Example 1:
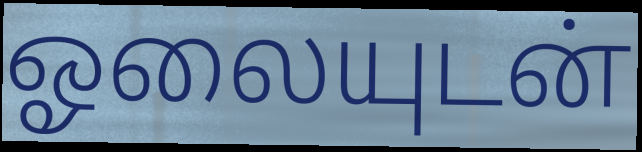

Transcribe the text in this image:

ஓலையுடன்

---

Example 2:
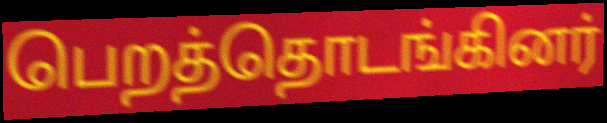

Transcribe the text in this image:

பெறத்தொடங்கினர்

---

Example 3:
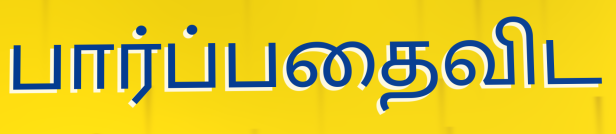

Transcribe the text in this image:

பார்ப்பதைவிட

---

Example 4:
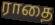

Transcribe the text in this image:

ராதை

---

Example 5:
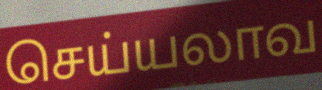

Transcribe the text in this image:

செய்யலாவ